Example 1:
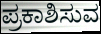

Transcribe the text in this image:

ಪ್ರಕಾಶಿಸುವ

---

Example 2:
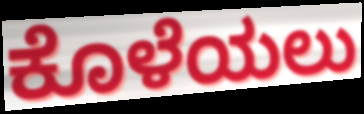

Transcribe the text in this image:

ಕೊಳೆಯಲು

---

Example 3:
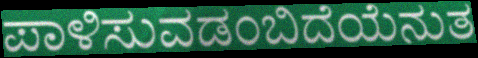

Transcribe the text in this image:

ಪಾಳಿಸುವಡಂಬಿದೆಯೆನುತ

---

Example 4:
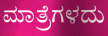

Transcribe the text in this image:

ಮಾತ್ರೆಗಳದು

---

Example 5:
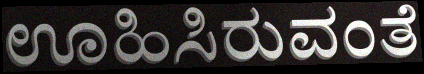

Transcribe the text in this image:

ಊಹಿಸಿರುವಂತೆ